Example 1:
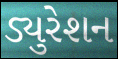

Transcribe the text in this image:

ડ્યુરેશન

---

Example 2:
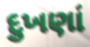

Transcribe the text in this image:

દુખણાં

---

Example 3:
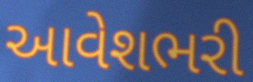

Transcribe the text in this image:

આવેશભરી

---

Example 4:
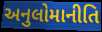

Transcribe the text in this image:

અનુલોમાનીતિ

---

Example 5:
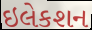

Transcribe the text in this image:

ઇલેકશન